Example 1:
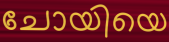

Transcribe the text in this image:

ചോയിയെ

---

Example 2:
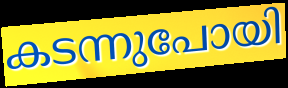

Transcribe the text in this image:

കടന്നുപോയി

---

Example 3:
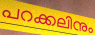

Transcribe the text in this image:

പറക്കലിനും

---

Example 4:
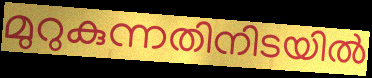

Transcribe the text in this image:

മുറുകുന്നതിനിടയിൽ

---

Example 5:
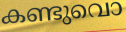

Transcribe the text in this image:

കണ്ടുവൊ